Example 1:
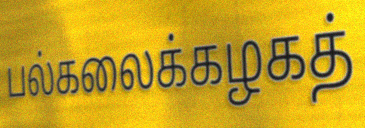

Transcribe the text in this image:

பல்கலைக்கழகத்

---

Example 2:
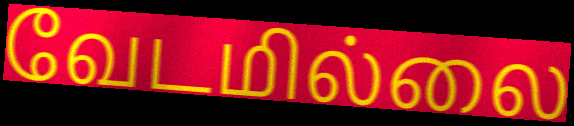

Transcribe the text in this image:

வேடமில்லை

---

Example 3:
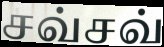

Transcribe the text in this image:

சவ்சவ்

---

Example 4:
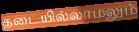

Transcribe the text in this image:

தடையில்லாமலும்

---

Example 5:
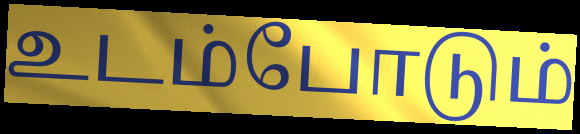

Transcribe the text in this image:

உடம்போடும்